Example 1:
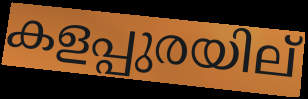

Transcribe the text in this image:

കളപ്പുരയില്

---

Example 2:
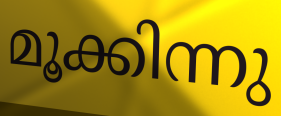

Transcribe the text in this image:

മൂക്കിന്നു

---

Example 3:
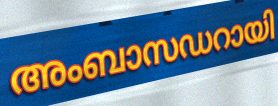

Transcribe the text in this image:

അംബാസഡറായി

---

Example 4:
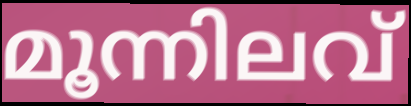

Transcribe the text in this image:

മൂന്നിലവ്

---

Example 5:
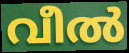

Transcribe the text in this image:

വീൽ